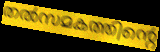
തൽസമകത്തിന്റെ